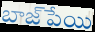
బాజ్‌పేయి